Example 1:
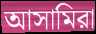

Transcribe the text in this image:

আসামিরা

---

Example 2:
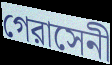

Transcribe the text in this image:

গেরাসেনী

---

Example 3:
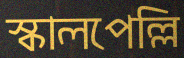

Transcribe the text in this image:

স্কালপেল্লি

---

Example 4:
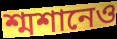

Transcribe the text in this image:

শ্মশানেও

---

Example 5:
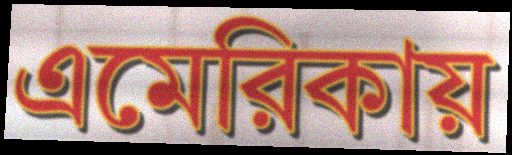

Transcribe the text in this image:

এমেরিকায়